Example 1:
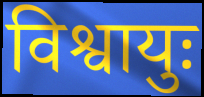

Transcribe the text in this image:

विश्वायुः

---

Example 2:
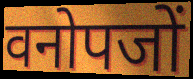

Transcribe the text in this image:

वनोपजों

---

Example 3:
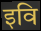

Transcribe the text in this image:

इवि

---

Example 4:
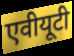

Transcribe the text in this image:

एवीयूटी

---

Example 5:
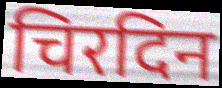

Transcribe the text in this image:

चिरदिन